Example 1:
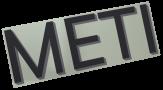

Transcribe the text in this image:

METI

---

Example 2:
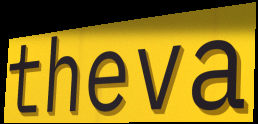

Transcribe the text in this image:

theva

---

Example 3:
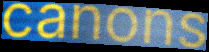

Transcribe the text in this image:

canons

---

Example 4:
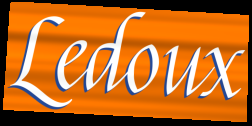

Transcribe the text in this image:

Ledoux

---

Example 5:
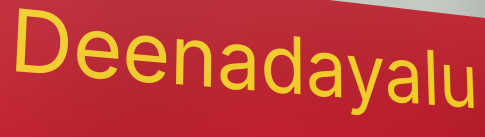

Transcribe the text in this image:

Deenadayalu